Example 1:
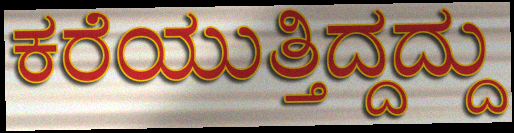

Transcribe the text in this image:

ಕರೆಯುತ್ತಿದ್ದದ್ದು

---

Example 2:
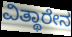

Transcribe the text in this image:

ವಿತ್ಥಾರೇನ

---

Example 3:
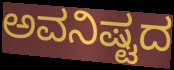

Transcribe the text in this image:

ಅವನಿಷ್ಟದ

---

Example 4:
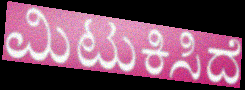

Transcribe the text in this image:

ಮಿಟುಕಿಸಿದೆ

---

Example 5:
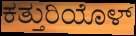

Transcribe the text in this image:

ಕತ್ತುರಿಯೊಳ್